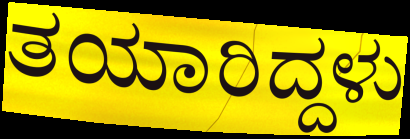
ತಯಾರಿದ್ದಳು